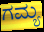
ಗಮ್ಯ